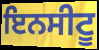
ਇਨਸੀਟੂ